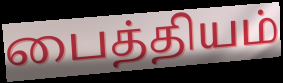
பைத்தியம்